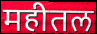
महीतल